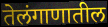
तेलंगाणातील